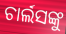
ଚାର୍ଲସଙ୍କୁ